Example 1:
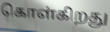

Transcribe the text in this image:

கொள்கிறது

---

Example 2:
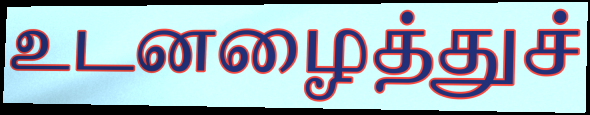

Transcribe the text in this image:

உடனழைத்துச்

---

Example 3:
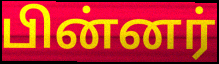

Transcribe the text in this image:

பின்னர்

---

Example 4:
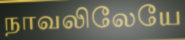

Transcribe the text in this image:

நாவலிலேயே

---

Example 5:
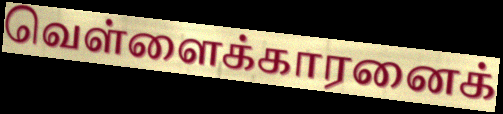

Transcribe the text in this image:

வெள்ளைக்காரனைக்